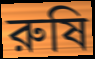
রুষি